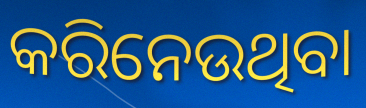
କରିନେଉଥିବା